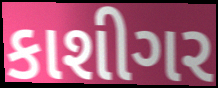
કાશીગર